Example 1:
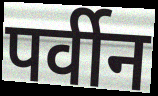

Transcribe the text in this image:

पर्वीन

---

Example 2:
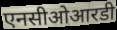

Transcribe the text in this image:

एनसीओआरडी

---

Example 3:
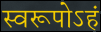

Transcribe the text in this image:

स्वरूपोऽहं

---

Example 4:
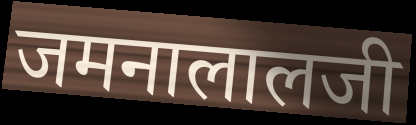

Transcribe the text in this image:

जमनालालजी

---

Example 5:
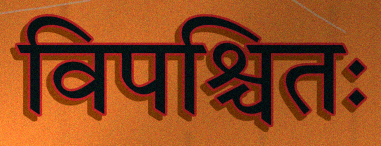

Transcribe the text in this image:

विपश्चितः